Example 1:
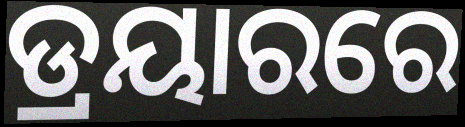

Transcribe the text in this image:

ଡ୍ରୟାରରେ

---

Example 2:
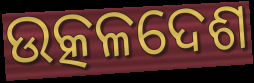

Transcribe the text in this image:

ଉତ୍କଳଦେଶ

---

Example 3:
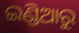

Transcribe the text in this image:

ଇଣ୍ଡିଆରୁ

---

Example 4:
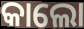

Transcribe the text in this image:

କାଲୋ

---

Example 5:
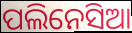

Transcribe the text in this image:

ପଲିନେସିଆ